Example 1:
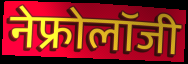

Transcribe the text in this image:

नेफ्रोलॉजी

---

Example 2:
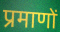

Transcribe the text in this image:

प्रमाणों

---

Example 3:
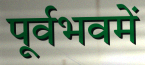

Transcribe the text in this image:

पूर्वभवमें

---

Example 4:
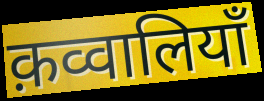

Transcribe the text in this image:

क़व्वालियाँ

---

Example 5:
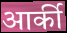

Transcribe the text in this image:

आर्की